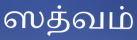
ஸத்வம்